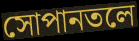
সোপানতলে